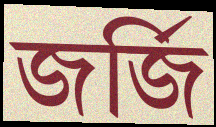
জর্জি